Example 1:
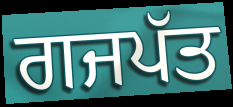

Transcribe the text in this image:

ਗਜਪੱਤ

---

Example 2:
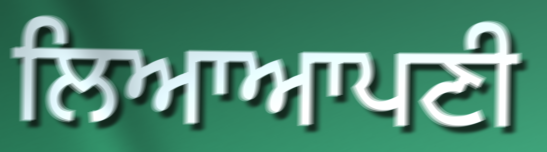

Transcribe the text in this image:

ਲਿਆਆਪਣੀ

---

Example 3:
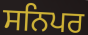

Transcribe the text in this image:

ਸਨਿਪਰ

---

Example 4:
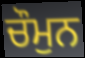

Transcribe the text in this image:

ਚੌਮੁਨ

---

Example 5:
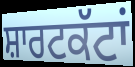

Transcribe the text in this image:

ਸ਼ਾਰਟਕੱਟਾਂ